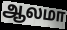
ஆலமா